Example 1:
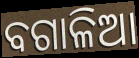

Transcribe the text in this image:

ବଗାଳିଆ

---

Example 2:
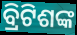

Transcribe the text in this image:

ବ୍ରିଟିଶଙ୍କ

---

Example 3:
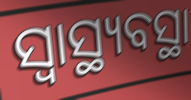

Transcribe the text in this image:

ସ୍ଵାସ୍ଥ୍ୟବସ୍ଥା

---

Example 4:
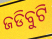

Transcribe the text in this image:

ଜଡିବୁଟି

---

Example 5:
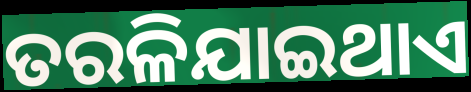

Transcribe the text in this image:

ତରଳିଯାଇଥାଏ